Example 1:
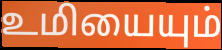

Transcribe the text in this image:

உமியையும்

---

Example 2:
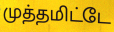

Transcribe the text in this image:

முத்தமிட்டே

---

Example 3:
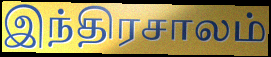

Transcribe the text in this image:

இந்திரசாலம்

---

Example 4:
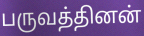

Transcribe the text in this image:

பருவத்தினன்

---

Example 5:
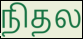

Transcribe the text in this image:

நிதல